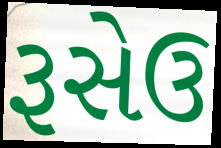
રૂસેઉ